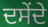
ਦਸੇਂਦੇ